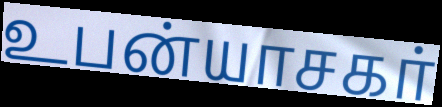
உபன்யாசகர்